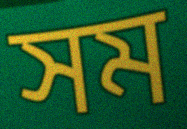
সম